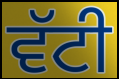
ਵੱਟੀ